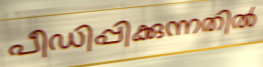
പീഡിപ്പിക്കുന്നതിൽ